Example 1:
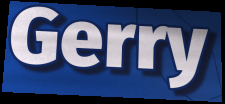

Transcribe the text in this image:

Gerry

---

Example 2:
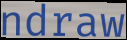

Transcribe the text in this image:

ndraw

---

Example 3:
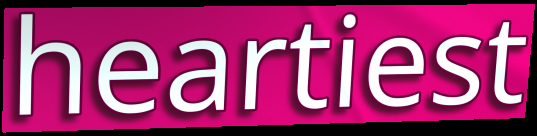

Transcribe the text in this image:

heartiest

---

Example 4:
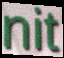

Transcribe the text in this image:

nit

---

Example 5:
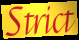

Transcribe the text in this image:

Strict